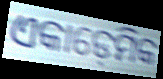
ଏକାଡ଼େମିକ